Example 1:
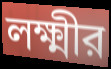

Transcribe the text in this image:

লক্ষ্মীর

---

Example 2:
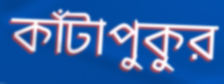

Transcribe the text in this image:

কাঁটাপুকুর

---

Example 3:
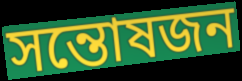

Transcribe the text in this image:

সন্তোষজন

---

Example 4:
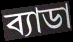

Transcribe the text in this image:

ব্যাডা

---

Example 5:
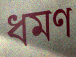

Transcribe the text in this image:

ধমণ